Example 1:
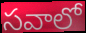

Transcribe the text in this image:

సవాలో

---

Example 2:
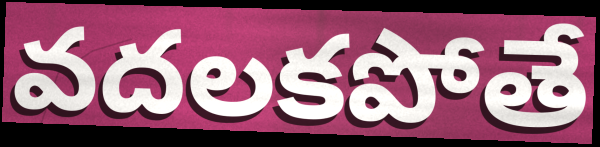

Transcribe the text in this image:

వదలకపోతే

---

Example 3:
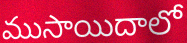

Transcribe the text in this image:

ముసాయిదాలో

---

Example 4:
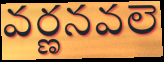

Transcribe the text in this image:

వర్ణనవలె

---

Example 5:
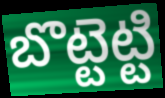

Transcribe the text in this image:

బొట్టెట్టి